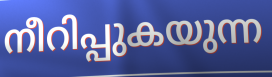
നീറിപ്പുകയുന്ന